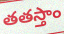
తతస్తాం